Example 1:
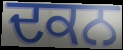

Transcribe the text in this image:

ਦਕਨ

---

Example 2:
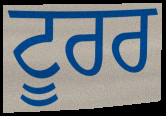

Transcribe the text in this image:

ਟੂਰਰ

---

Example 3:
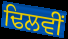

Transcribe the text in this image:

ਢਿਲਵੀਂ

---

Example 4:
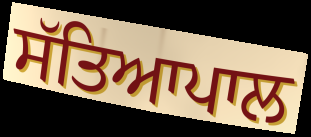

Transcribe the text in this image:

ਸੱਤਿਆਪਾਲ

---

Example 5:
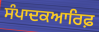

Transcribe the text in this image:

ਸੰਪਾਦਕਆਰਿਫ਼